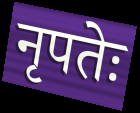
नृपतेः